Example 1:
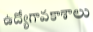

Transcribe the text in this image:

ఉద్యోగావకాశాలు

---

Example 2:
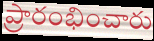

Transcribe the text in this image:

ప్రారంభించారు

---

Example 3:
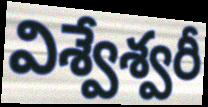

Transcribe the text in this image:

విశ్వేశ్వరీ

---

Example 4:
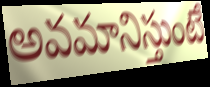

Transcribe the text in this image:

అవమానిస్తుంటే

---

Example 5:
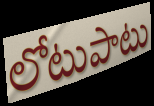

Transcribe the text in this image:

లోటుపాటు